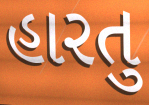
હારતુ